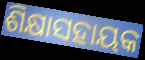
ଶିକ୍ଷାସହାୟକ